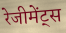
रेजीमेंट्स